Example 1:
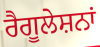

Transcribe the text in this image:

ਰੈਗੂਲੇਸ਼ਨਾਂ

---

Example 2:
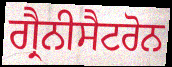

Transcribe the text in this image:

ਗ੍ਰੈਨੀਸੈਟਰੋਨ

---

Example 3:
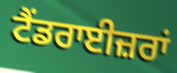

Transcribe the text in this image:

ਟੈਂਡਰਾਈਜ਼ਰਾਂ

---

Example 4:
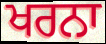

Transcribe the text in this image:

ਖਰਨਾ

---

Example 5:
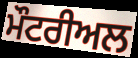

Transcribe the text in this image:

ਮੌਟਰੀਅਲ